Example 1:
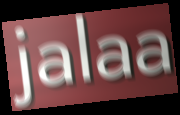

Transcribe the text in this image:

jalaa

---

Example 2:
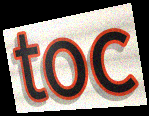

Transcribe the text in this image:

toc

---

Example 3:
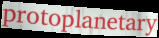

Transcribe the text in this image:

protoplanetary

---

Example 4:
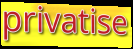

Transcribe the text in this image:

privatise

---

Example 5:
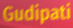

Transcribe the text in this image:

Gudipati